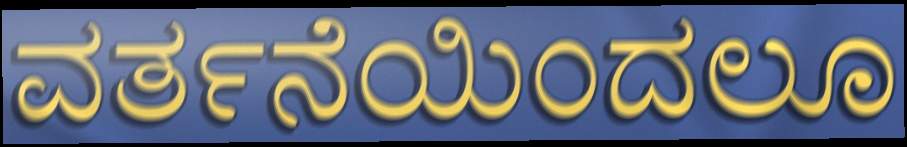
ವರ್ತನೆಯಿಂದಲೂ